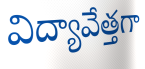
విద్యావేత్తగా